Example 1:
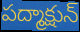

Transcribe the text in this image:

పద్మాక్షున్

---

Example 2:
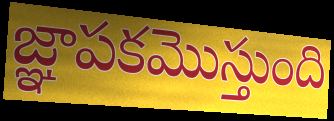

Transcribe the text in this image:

జ్ఞాపకమొస్తుంది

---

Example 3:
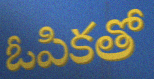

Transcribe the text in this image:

ఓపికతో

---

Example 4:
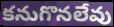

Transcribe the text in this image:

కనుగొనలేవు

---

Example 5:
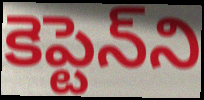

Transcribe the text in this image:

కెప్టెన్‌ని